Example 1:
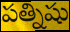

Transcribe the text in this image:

పత్నిషు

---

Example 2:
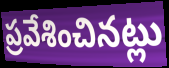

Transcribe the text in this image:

ప్రవేశించినట్లు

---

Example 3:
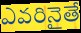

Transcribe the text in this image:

ఎవరినైతే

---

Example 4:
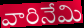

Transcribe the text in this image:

వారినేమి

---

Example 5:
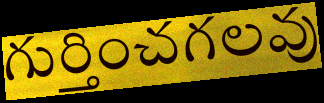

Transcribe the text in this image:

గుర్తించగలవు